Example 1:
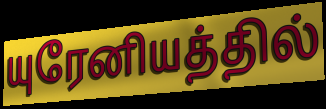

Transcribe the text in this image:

யுரேனியத்தில்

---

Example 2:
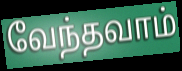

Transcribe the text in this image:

வேந்தவாம்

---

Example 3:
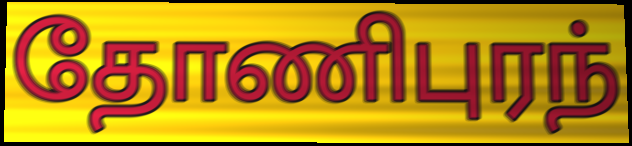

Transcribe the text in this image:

தோணிபுரந்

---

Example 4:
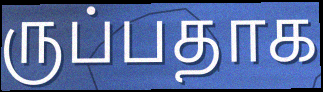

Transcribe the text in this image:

ருப்பதாக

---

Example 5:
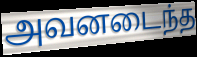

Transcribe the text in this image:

அவனடைந்த